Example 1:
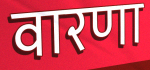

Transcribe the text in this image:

वारणा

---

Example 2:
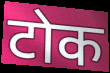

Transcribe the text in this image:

टोक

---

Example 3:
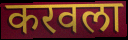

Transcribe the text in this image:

करवला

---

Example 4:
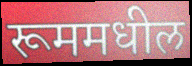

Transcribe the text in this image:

रूममधील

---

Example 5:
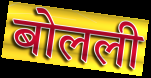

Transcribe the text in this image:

बोलली